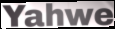
Yahwe